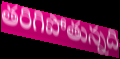
తరిగిపోతున్నది